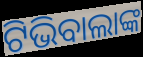
ଟିଭିବାଲାଙ୍କ